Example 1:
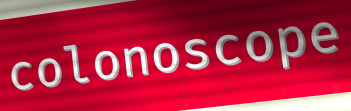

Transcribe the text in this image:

colonoscope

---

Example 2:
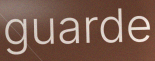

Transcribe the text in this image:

guarde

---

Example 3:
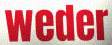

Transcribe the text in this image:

weder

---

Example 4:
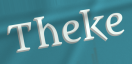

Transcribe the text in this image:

Theke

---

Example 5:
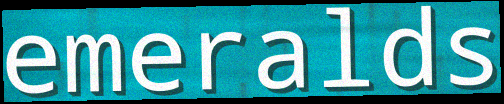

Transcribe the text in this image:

emeralds